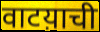
वाटय़ाची